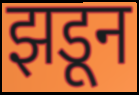
झडून